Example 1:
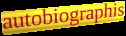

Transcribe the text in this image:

autobiographis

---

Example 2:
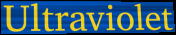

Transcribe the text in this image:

Ultraviolet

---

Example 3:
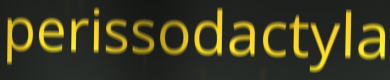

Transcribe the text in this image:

perissodactyla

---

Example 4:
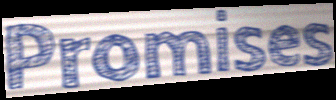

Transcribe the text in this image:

Promises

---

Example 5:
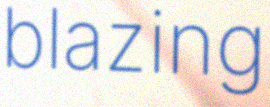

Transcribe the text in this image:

blazing